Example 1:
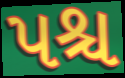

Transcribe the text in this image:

પશ્ચ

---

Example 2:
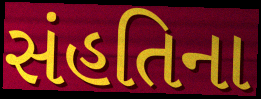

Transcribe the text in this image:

સંહતિના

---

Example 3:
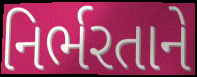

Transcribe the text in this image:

નિર્ભરતાને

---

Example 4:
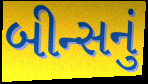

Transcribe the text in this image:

બીન્સનું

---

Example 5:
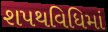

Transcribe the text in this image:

શપથવિધિમાં